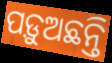
ପଡ଼ୁଅଛନ୍ତି